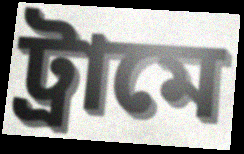
ট্রামে